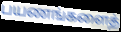
பயணங்களைத்